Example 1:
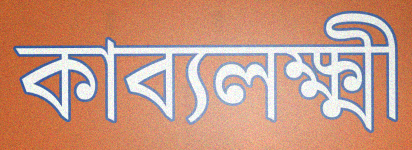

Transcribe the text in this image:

কাব্যলক্ষ্মী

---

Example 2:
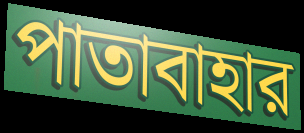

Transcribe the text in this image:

পাতাবাহার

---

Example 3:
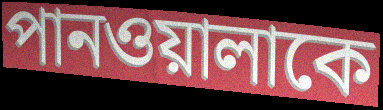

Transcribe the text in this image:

পানওয়ালাকে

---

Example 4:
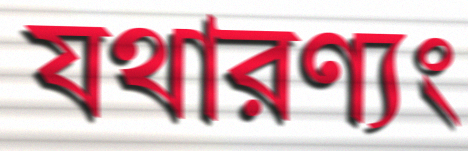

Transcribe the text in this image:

যথারণ্যং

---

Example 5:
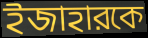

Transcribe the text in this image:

ইজাহারকে